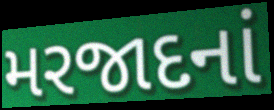
મરજાદનાં